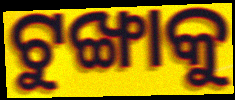
ଟୁଙ୍ଖାକୁ